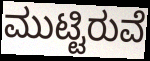
ಮುಟ್ಟಿರುವೆ